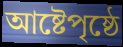
আষ্টেপৃষ্ঠে